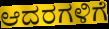
ಆದರಗಳಿಗೆ